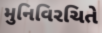
મુનિવિરચિતે